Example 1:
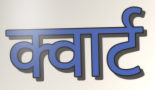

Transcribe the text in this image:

क्वार्ट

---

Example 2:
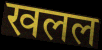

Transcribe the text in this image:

खलल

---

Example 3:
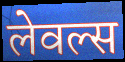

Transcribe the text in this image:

लेवल्स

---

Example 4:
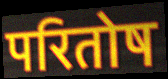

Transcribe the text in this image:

परितोष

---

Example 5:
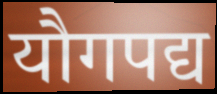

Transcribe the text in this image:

यौगपद्य